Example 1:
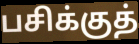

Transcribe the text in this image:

பசிக்குத்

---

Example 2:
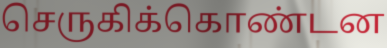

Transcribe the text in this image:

செருகிக்கொண்டன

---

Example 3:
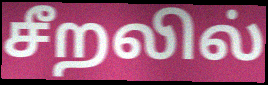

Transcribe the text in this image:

சீறலில்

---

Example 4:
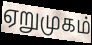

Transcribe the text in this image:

ஏறுமுகம்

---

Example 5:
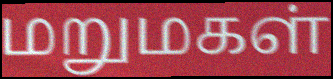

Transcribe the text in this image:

மறுமகள்